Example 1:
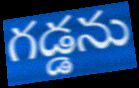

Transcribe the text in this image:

గడ్డను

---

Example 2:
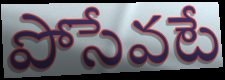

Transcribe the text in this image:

పోసేవటే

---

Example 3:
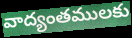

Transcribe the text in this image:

వాద్యంతములకు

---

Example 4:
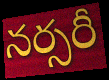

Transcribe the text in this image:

నర్సరీ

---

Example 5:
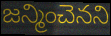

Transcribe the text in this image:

జన్మించెనని